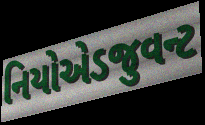
નિયોએડજુવન્ટ